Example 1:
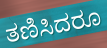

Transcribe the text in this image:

ತಣಿಸಿದರೂ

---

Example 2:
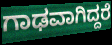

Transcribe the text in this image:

ಗಾಢವಾಗಿದ್ದರೆ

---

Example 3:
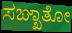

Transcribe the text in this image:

ಸಙ್ಖಾತೋ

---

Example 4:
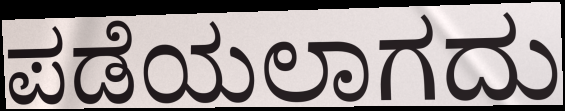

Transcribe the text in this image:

ಪಡೆಯಲಾಗದು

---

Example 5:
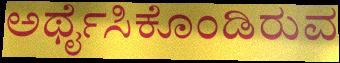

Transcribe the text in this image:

ಅರ್ಥೈಸಿಕೊಂಡಿರುವ